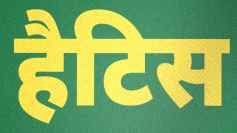
हैटिस